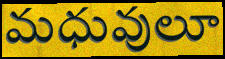
మధువులూ